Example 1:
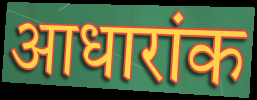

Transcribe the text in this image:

आधारांक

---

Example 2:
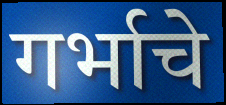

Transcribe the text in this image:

गर्भाचे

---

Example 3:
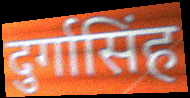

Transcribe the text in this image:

दुर्गासिंह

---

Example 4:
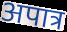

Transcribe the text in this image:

अपात्र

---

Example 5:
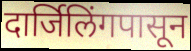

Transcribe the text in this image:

दार्जिलिंगपासून